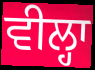
ਵੀਲ੍ਹਾ